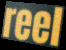
reel